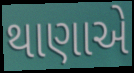
થાણાએ